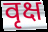
वृक्ष